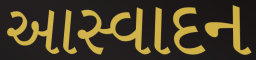
આસ્વાદન